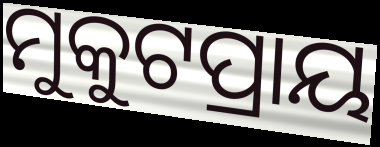
ମୁକୁଟପ୍ରାୟ